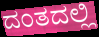
ದಂತದಲ್ಲಿ